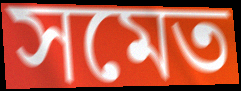
সমেত